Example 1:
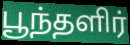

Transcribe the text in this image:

பூந்தளிர்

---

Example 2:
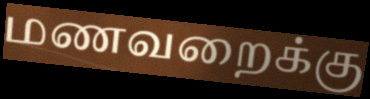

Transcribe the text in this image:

மணவறைக்கு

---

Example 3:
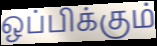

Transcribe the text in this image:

ஒப்பிக்கும்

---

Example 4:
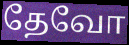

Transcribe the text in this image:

தேவோ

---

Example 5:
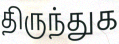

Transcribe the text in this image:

திருந்துக